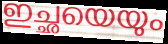
ഇച്ഛയെയും